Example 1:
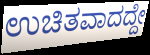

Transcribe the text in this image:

ಉಚಿತವಾದದ್ದೇ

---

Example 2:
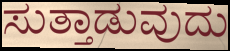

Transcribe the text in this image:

ಸುತ್ತಾಡುವುದು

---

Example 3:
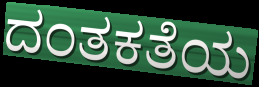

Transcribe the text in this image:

ದಂತಕತೆಯ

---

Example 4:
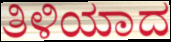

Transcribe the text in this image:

ತಿಳಿಯಾದ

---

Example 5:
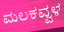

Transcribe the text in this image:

ಮಲಕವ್ವಳ